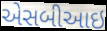
એસબીઆઇ